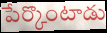
పేర్కొంటాడు